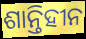
ଶାନ୍ତିହୀନ